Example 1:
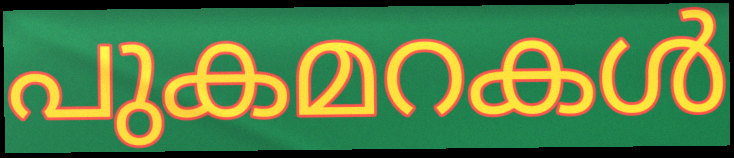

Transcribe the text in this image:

പുകമറകൾ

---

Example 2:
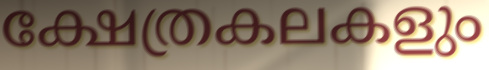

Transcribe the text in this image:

ക്ഷേത്രകലകളും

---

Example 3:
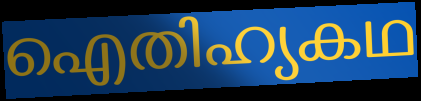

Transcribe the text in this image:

ഐതിഹ്യകഥ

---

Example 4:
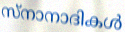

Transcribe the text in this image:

സ്നാനാദികൾ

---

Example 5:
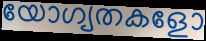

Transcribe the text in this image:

യോഗ്യതകളോ